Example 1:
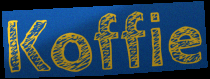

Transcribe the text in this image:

Koffie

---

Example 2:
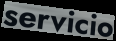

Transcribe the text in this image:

servicio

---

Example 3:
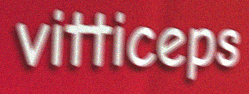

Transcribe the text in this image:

vitticeps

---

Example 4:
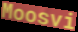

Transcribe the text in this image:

Moosvi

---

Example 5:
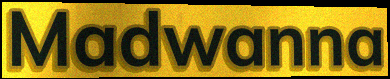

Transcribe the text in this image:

Madwanna